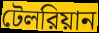
টেলরিয়ান